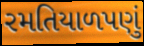
રમતિયાળપણું